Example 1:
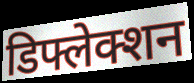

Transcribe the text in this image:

डिफ्लेक्शन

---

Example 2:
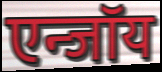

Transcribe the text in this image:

एन्जॉय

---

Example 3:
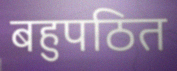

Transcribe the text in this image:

बहुपठित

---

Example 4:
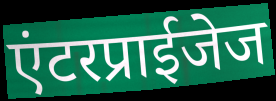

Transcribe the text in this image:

एंटरप्राईजेज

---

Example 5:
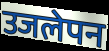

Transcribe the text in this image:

उजलेपन